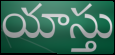
యాస్తు